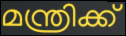
മന്ത്രിക്ക്